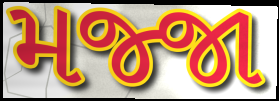
મજ્જા